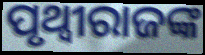
ପୃଥ୍ଵୀରାଜଙ୍କ